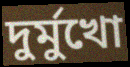
দুর্মুখো